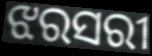
ଝରସରୀ